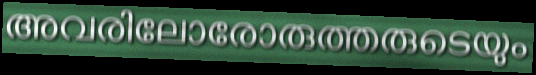
അവരിലോരോരുത്തരുടെയും